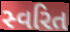
સ્વરિત